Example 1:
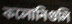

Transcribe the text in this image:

কলোনিগুলি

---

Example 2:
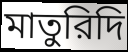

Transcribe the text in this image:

মাতুরিদি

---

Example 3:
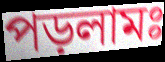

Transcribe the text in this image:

পড়লামঃ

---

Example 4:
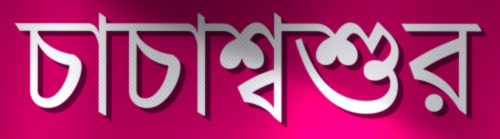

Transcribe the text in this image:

চাচাশ্বশুর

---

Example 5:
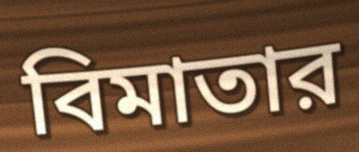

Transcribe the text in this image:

বিমাতার